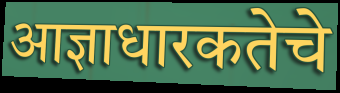
आज्ञाधारकतेचे